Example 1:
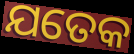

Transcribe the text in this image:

ଯତେକ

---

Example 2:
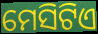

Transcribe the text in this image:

ମେସିଟିଏ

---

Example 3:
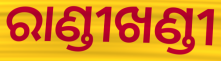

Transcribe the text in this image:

ରାଣ୍ଡୀଖଣ୍ଡୀ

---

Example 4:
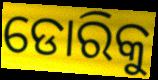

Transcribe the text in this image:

ଡୋରିକୁ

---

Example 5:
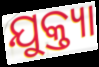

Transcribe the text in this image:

ଯୁକ୍ତ୍ୟା